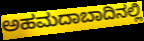
ಅಹಮದಾಬಾದಿನಲ್ಲಿ